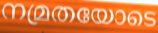
നമ്രതയോടെ